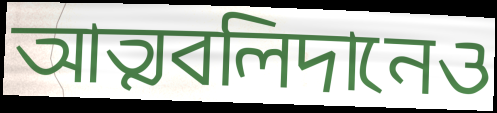
আত্মবলিদানেও